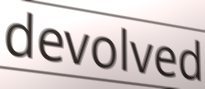
devolved